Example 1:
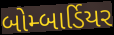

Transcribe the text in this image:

બોમ્બાર્ડિયર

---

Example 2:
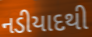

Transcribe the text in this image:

નડીયાદથી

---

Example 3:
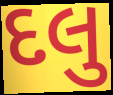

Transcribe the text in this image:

દલુ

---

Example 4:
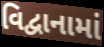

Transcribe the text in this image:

વિદ્વાનામાં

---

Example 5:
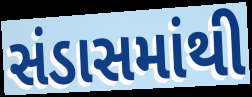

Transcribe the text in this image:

સંડાસમાંથી